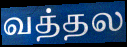
வத்தல